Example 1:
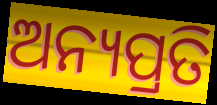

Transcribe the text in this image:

ଅନ୍ୟପ୍ରତି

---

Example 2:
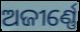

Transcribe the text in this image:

ଅଜୀର୍ଣ୍ଣେ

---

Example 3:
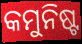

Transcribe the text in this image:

କମୁନିଷ୍ଟ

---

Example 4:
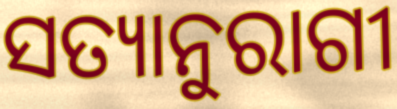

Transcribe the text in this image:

ସତ୍ୟାନୁରାଗୀ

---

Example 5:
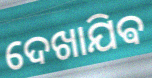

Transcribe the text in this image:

ଦେଖାଯିଵ